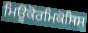
ਮਿਊਕੋਰਮਿਕੋਸਿਸ